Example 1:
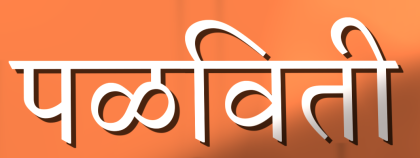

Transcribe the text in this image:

पळविती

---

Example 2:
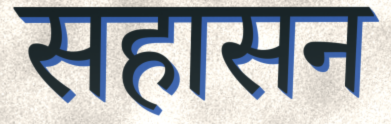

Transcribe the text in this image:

सहासन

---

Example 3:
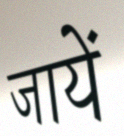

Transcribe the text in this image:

जायें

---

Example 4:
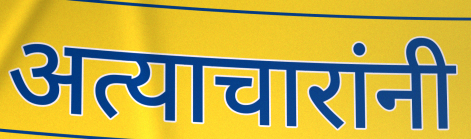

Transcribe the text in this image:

अत्याचारांनी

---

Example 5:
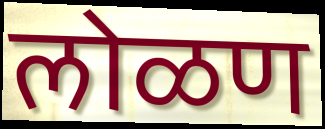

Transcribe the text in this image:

लोळण